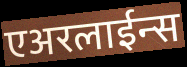
एअरलाईन्स